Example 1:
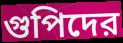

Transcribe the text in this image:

গুপিদের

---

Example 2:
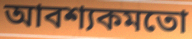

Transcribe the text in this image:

আবশ্যকমতো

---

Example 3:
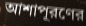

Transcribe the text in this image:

আশাপূরণের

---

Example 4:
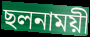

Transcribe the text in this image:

ছলনাময়ী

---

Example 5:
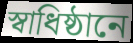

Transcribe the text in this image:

স্বাধিষ্ঠানে